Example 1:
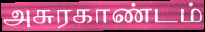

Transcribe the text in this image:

அசுரகாண்டம்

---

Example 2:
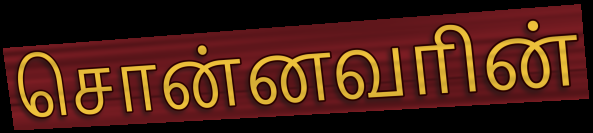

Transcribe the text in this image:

சொன்னவரின்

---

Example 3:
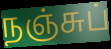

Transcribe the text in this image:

நஞ்சுப்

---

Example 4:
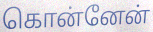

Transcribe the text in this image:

கொன்னேன்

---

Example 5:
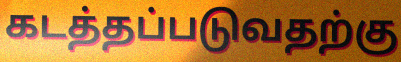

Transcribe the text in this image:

கடத்தப்படுவதற்கு